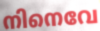
നിനെവേ